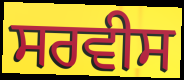
ਸਰਵੀਸ